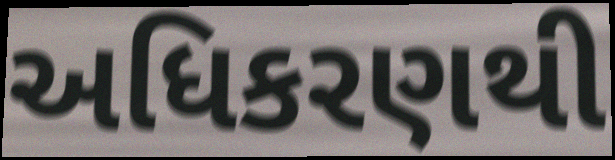
અધિકરણથી